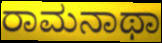
ರಾಮನಾಥಾ